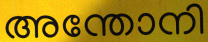
അന്തോനി